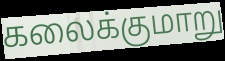
கலைக்குமாறு